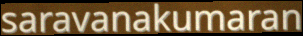
saravanakumaran